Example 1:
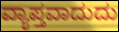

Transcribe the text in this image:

ವ್ಯಾಪ್ತವಾದುದು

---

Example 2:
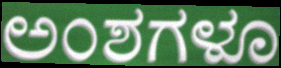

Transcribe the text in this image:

ಅಂಶಗಳೂ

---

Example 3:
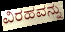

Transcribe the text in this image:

ವಿರಹವನ್ನು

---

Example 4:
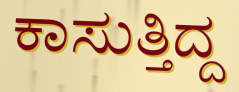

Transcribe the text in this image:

ಕಾಸುತ್ತಿದ್ದ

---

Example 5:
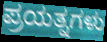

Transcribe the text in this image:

ಪ್ರಯತ್ನಗಳು